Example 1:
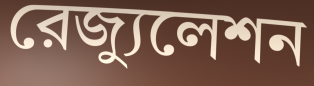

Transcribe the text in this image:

রেজ্যুলেশন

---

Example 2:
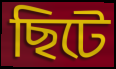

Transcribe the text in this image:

ছিটে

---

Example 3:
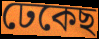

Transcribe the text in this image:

ঢেকেছ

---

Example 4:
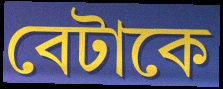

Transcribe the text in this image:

বেটাকে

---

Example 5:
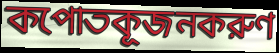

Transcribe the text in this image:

কপোতকূজনকরুণ